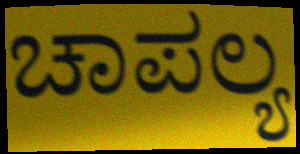
ಚಾಪಲ್ಯ